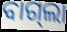
ବାଗ୍‍ଲା